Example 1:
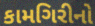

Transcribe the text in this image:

કામગિરીનો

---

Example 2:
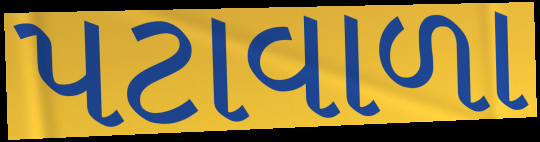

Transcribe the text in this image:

પટાવાળા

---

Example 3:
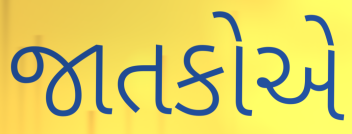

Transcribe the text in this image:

જાતકોએ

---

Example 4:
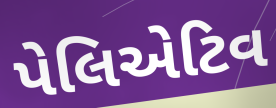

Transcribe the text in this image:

પેલિએટિવ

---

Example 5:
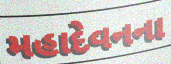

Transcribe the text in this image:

મહાદેવનના